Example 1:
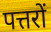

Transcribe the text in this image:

पत्तरों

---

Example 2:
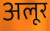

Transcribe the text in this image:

अलूर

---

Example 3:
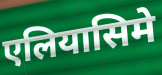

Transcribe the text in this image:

एलियासिमे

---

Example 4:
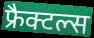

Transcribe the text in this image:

फ्रैक्टल्स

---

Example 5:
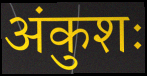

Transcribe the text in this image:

अंकुशः